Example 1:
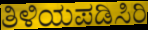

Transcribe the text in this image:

ತಿಳಿಯಪಡಿಸಿರಿ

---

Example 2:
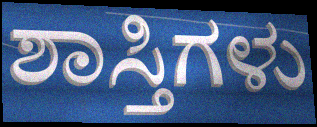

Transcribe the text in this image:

ಶಾಸ್ತಿಗಳು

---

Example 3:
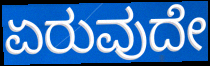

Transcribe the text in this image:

ಏರುವುದೇ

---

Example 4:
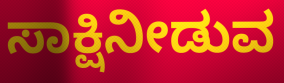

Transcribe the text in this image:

ಸಾಕ್ಷಿನೀಡುವ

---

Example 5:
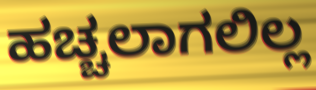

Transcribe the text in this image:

ಹಚ್ಚಲಾಗಲಿಲ್ಲ